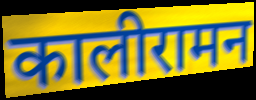
कालीरामन